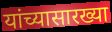
यांच्यासारख्या